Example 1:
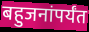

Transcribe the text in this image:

बहुजनांपर्यंत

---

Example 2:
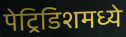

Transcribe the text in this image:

पेट्रिडिशमध्ये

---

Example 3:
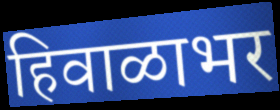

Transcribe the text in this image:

हिवाळाभर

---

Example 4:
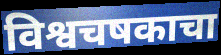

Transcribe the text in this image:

विश्वचषकाचा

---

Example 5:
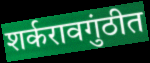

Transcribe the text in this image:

शर्करावगुंठीत